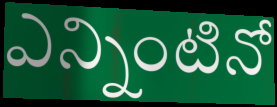
ఎన్నింటినో